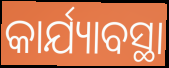
କାର୍ଯ୍ୟାବସ୍ଥା